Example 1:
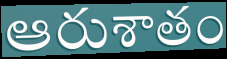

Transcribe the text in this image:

ఆరుశాతం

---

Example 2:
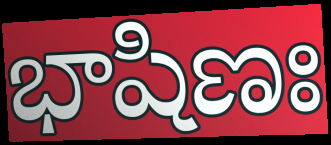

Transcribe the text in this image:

భాషిణః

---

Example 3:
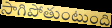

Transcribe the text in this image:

సాగిపోతుంటుంది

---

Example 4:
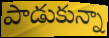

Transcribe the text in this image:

పాడుకున్నా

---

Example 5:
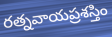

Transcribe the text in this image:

రత్నవాయప్రశస్తిం